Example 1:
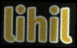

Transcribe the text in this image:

lihil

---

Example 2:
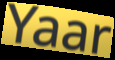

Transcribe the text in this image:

Yaar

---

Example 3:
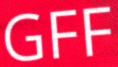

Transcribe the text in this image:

GFF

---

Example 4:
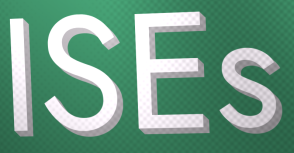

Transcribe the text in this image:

ISEs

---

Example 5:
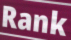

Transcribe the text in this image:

Rank